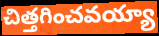
చిత్తగించవయ్యా